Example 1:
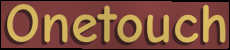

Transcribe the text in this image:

Onetouch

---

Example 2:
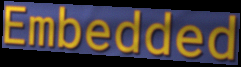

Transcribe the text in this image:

Embedded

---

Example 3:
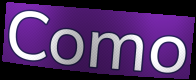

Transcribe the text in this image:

Como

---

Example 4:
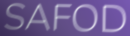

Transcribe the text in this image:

SAFOD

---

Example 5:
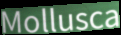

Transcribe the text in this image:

Mollusca